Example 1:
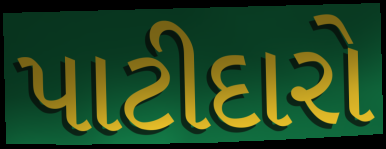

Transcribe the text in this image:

પાટીદારો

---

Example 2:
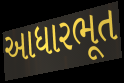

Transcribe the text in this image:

આધારભૂત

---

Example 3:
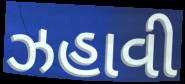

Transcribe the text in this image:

ઝહાવી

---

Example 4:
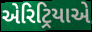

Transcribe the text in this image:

એરિટ્રિયાએ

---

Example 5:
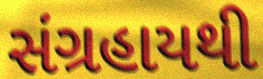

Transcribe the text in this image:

સંગ્રહાયથી